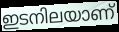
ഇടനിലയാണ്